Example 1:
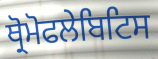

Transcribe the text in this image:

ਥ੍ਰੋਮੋਫਲੇਬਿਟਿਸ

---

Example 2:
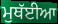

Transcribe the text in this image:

ਮੁਥੱਈਆ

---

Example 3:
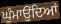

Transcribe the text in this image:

ਘੁੰਮਾਉਂਦਿਆਂ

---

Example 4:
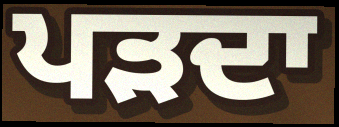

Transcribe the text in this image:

ਪੜਦਾ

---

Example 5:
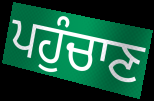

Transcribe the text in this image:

ਪਹੁੰਚਾਣ